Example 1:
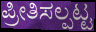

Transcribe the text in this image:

ಪ್ರೀತಿಸಲ್ಪಟ್ಟ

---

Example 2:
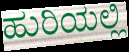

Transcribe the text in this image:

ಹುರಿಯಲ್ಲಿ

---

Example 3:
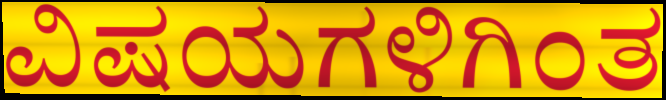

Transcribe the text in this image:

ವಿಷಯಗಳಿಗಿಂತ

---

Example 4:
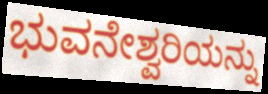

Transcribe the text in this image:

ಭುವನೇಶ್ವರಿಯನ್ನು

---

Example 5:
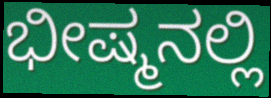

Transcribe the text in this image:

ಭೀಷ್ಮನಲ್ಲಿ